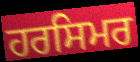
ਹਰਸਿਮਰ